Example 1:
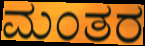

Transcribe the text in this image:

ಮಂತರ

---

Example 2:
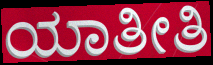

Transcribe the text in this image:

ಯಾತೀತಿ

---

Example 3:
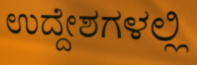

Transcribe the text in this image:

ಉದ್ದೇಶಗಳಲ್ಲಿ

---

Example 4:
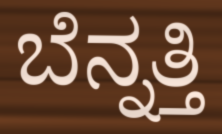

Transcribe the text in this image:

ಬೆನ್ನತ್ತಿ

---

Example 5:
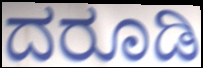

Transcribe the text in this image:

ದರೂಡಿ